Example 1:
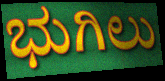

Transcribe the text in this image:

ಭುಗಿಲು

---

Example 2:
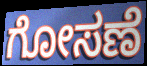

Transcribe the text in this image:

ಗೋಸಣೆ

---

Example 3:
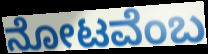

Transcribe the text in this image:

ನೋಟವೆಂಬ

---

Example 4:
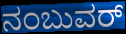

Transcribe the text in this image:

ನಂಬುವರ್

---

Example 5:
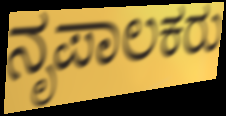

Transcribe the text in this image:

ನೃಪಾಲಕರು